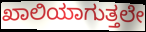
ಖಾಲಿಯಾಗುತ್ತಲೇ